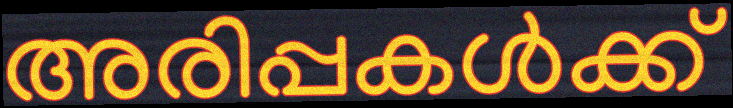
അരിപ്പകൾക്ക്